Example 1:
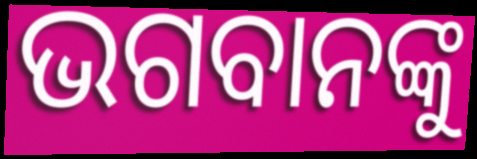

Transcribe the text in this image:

ଭଗବାନଙ୍କୁ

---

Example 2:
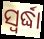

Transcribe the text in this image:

ସ୍ଵର୍ଦ୍ଧା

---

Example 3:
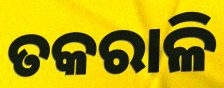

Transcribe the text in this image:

ତକରାଳି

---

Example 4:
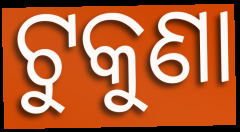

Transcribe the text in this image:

ଟୁକୁଣା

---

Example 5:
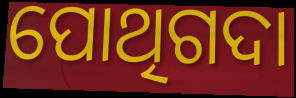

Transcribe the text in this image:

ପୋଥିଗଦା